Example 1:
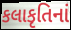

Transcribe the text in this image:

કલાકૃતિનાં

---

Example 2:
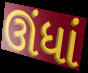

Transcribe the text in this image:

ઊંધાં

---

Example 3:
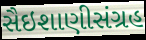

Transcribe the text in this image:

સૈઇશાણીસંગ્રહ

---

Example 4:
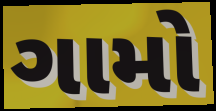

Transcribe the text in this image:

ગામો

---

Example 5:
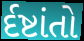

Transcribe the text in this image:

ર્દષ્ટાંતો